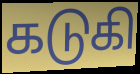
கடுகி